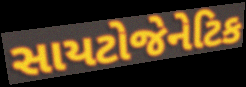
સાયટોજેનેટિક